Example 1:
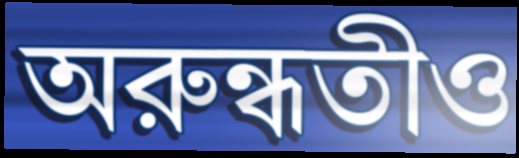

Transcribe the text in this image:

অরুন্ধতীও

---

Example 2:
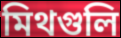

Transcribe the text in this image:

মিথগুলি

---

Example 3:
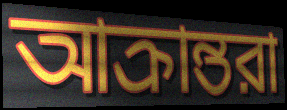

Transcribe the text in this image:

আক্রান্তরা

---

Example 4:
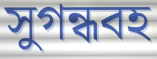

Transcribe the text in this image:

সুগন্ধবহ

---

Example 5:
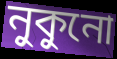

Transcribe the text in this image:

নুকুনো